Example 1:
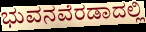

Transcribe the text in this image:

ಭುವನವೆರಡಾದಲ್ಲಿ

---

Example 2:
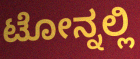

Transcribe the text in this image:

ಟೋನ್ನಲ್ಲಿ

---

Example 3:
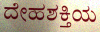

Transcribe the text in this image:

ದೇಹಶಕ್ತಿಯ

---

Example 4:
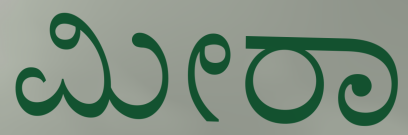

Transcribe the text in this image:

ಮೀರಾ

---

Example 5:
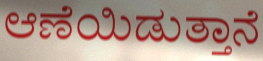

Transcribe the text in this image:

ಆಣೆಯಿಡುತ್ತಾನೆ